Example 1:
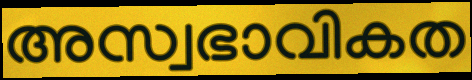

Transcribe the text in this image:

അസ്വഭാവികത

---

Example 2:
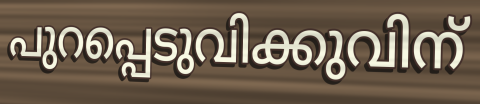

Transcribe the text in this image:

പുറപ്പെടുവിക്കുവിന്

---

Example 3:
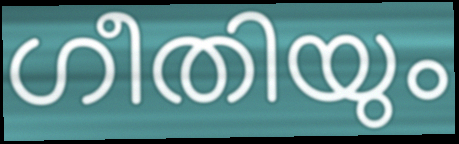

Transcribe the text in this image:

ഗീതിയും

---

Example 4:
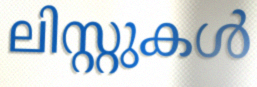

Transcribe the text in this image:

ലിസ്റ്റുകൾ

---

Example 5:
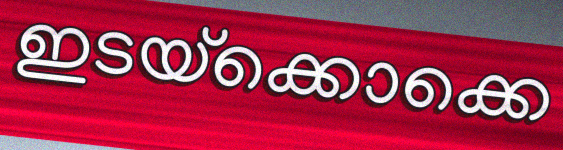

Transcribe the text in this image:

ഇടയ്‌ക്കൊക്കെ